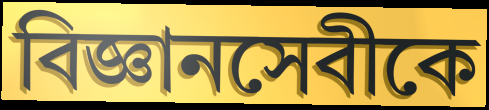
বিজ্ঞানসেবীকে